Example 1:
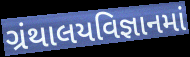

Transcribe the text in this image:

ગ્રંથાલયવિજ્ઞાનમાં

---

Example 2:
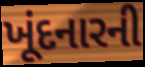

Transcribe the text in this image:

ખૂંદનારની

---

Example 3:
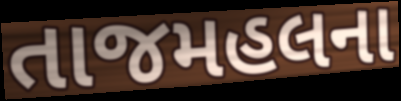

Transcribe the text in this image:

તાજમહલના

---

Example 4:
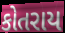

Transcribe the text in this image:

કોતરાય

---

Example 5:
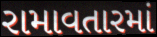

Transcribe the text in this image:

રામાવતારમાં